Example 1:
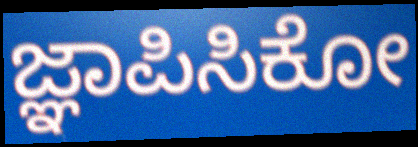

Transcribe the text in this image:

ಜ್ಞಾಪಿಸಿಕೋ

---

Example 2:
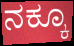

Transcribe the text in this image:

ನಕ್ಕೂ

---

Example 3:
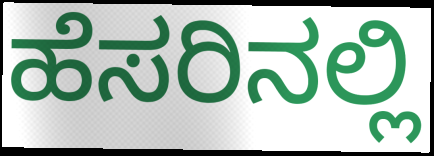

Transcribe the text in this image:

ಹೆಸರಿನಲ್ಲಿ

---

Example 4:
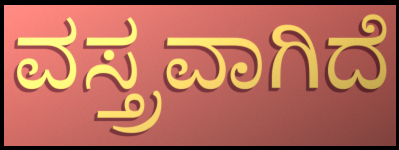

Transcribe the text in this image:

ವಸ್ತ್ರವಾಗಿದೆ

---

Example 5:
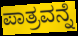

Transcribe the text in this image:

ಪಾತ್ರವನ್ನೆ